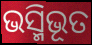
ଭସ୍ମିଭୂତ